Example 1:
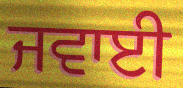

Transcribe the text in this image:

ਜਵਾਈ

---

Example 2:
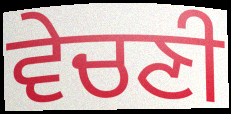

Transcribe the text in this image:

ਵੇਚਣੀ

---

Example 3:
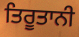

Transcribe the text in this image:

ਤਿਰੂਤਾਨੀ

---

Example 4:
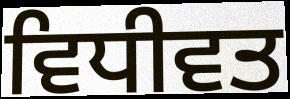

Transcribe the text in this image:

ਵਿਧੀਵਤ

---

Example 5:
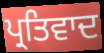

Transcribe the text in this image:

ਪ੍ਰਤਿਵਾਦ